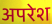
अपरेश